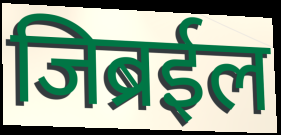
जिब्रईल